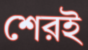
শেরই